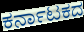
ಕರ್ನಾಟಕದ